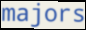
majors